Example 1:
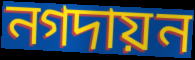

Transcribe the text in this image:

নগদায়ন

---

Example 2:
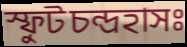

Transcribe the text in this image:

স্ফুটচন্দ্রহাসঃ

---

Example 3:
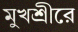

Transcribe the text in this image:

মুখশ্রীরে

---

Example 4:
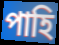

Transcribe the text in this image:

পাহি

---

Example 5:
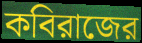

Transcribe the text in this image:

কবিরাজের